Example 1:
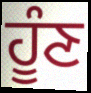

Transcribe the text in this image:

ਹੂੰਣ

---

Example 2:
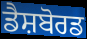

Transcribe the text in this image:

ਡੈਸ਼ਬੋਰਡ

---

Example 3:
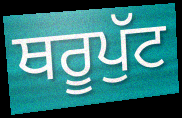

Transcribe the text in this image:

ਥਰੂਪੁੱਟ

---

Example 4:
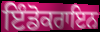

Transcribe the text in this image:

ਇੰਡੋਕਰਾਇਨ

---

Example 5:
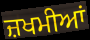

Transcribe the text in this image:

ਜ਼ਖਮੀਆਂ